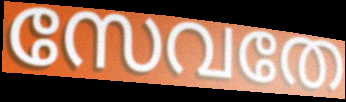
സേവതേ